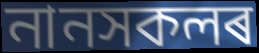
নানসকলৰ